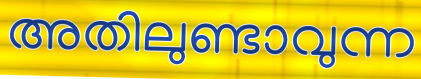
അതിലുണ്ടാവുന്ന